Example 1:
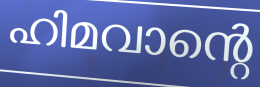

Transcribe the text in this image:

ഹിമവാന്റെ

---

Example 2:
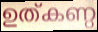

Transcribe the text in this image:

ഉത്കണ്ഠ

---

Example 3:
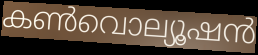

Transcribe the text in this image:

കൺവൊല്യൂഷൻ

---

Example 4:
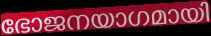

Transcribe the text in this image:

ഭോജനയാഗമായി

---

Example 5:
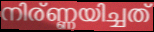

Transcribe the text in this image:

നിര്ണ്ണയിച്ചത്